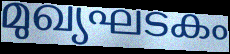
മുഖ്യഘടകം